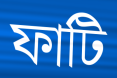
ফাটি